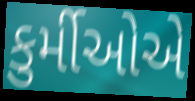
કુર્મીઓએ